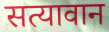
सत्यावान